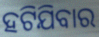
ହଟିଯିବାର